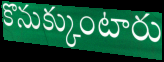
కొనుక్కుంటారు